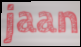
jaan